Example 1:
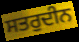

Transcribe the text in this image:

ਸਤਰੁਦੀਨ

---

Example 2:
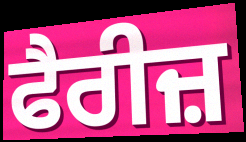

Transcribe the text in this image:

ਫੈਰੀਜ਼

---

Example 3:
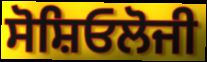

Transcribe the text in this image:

ਸੋਸ਼ਿਓਲੋਜੀ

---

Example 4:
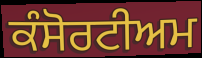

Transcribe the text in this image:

ਕੰਸੋਰਟੀਅਮ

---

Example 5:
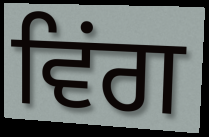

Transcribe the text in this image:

ਵਿਂਗ